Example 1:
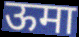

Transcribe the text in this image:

ऊमा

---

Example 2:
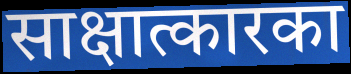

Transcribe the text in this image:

साक्षात्कारका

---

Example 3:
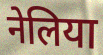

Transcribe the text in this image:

नेलिया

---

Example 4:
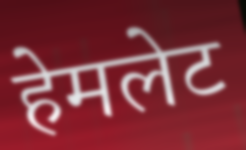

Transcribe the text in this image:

हेमलेट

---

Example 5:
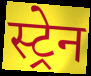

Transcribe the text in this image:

स्ट्रेन